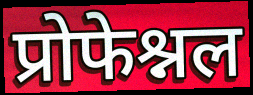
प्रोफेश्नल